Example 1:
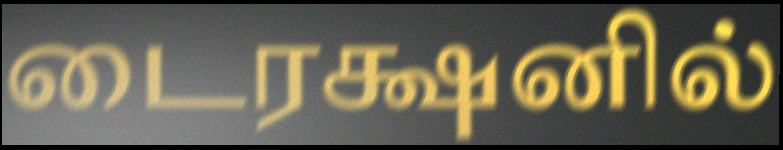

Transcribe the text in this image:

டைரக்ஷனில்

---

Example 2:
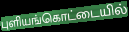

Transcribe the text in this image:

புளியங்கொட்டையில்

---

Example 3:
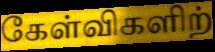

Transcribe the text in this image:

கேள்விகளிற்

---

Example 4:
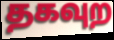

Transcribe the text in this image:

தகவுற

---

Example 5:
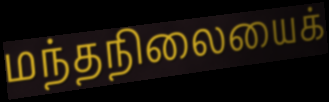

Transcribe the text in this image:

மந்தநிலையைக்